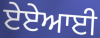
ਏਏਆਈ